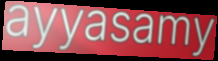
ayyasamy